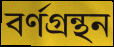
বর্ণগ্রন্থন